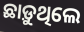
ଛାଡ଼ୁଥିଲେ